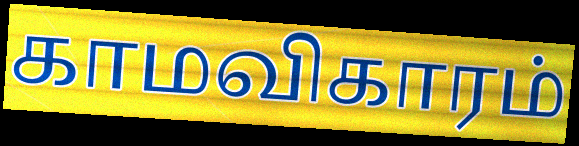
காமவிகாரம்